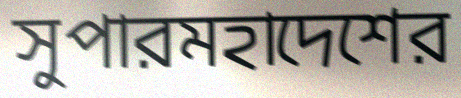
সুপারমহাদেশের